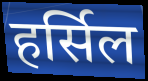
हर्सिल